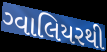
ગ્વાલિયરથી